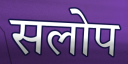
सलोप